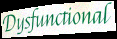
Dysfunctional